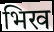
भिख